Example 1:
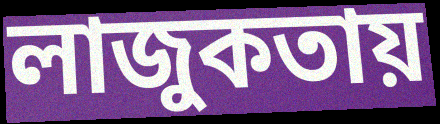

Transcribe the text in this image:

লাজুকতায়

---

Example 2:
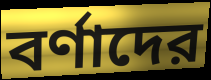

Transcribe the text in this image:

বর্ণাদের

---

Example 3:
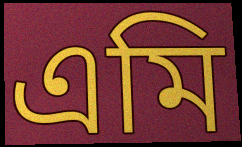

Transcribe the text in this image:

এমি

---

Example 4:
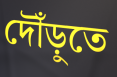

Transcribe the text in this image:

দৌঁড়ুতে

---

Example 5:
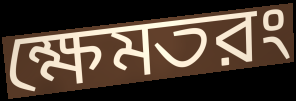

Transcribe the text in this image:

ক্ষেমতরং